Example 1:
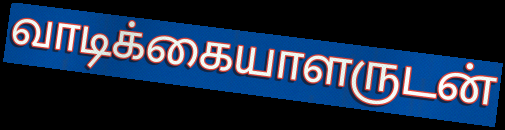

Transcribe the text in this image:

வாடிக்கையாளருடன்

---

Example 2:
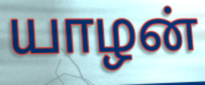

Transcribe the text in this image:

யாழன்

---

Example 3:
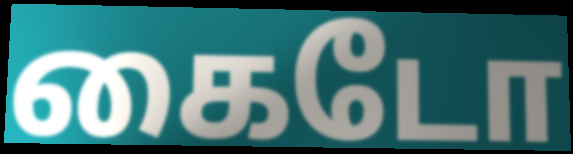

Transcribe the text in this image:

கைடோ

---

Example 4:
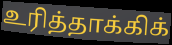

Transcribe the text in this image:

உரித்தாக்கிக்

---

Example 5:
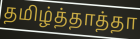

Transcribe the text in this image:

தமிழ்த்தாத்தா